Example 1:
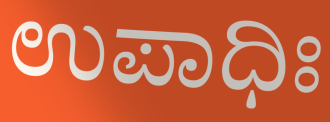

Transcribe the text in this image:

ಉಪಾಧಿಃ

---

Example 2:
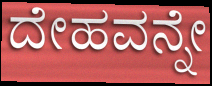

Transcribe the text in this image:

ದೇಹವನ್ನೇ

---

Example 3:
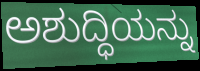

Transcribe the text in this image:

ಅಶುದ್ಧಿಯನ್ನು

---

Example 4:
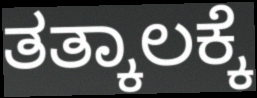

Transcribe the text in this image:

ತತ್ಕಾಲಕ್ಕೆ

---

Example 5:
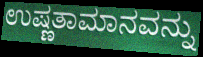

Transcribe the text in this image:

ಉಷ್ಣತಾಮಾನವನ್ನು